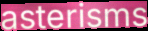
asterisms